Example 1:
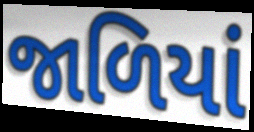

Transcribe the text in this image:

જાળિયાં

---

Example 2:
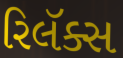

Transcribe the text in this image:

રિલૅક્સ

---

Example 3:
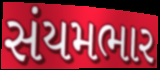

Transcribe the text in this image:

સંયમભાર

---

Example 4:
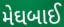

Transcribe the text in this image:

મેઘબાઈ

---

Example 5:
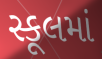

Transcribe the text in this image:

સ્કૂલમાં